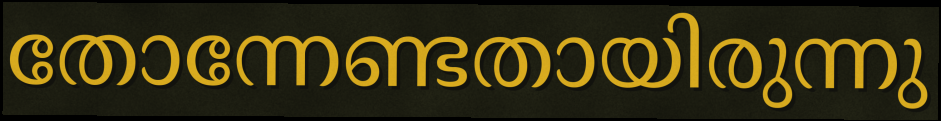
തോന്നേണ്ടതായിരുന്നു